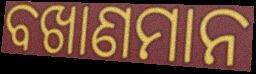
ବଖାଣମାନ